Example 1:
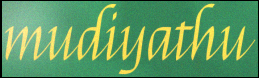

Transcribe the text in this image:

mudiyathu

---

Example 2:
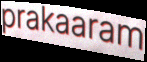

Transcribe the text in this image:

prakaaram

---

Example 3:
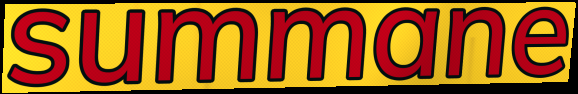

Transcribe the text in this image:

summane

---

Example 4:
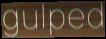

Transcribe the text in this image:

gulped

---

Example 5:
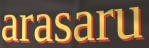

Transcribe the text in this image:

arasaru